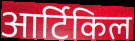
आर्टिकिल